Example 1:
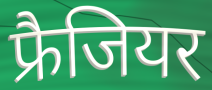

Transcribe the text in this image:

फ्रैजियर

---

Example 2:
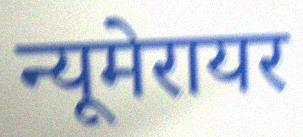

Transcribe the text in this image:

न्यूमेरायर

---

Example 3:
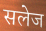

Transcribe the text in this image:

सलेज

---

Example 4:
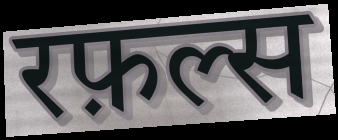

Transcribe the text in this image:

रफ़ल्स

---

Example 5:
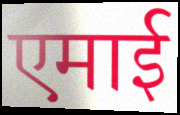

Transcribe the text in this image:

एमाई